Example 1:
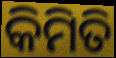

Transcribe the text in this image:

କିମିତି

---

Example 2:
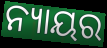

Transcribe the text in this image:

ନ୍ୟାୟର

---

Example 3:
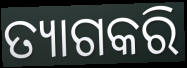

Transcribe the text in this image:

ତ୍ୟାଗକରି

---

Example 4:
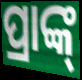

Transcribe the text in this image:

ପ୍ରାଙ୍କ୍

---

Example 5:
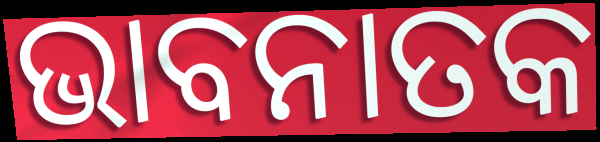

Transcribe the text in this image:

ଭାବନାତକ